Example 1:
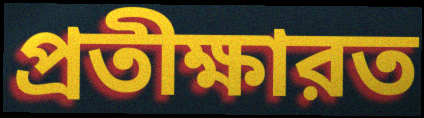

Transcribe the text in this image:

প্রতীক্ষারত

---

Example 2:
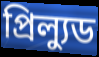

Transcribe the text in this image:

প্রিল্যুড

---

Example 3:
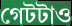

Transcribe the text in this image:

গেটটাও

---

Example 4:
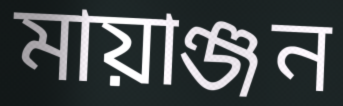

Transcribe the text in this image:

মায়াঞ্জন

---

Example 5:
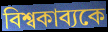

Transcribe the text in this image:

বিশ্বকাব্যকে